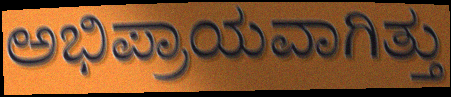
ಅಭಿಪ್ರಾಯವಾಗಿತ್ತು